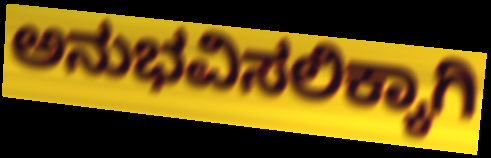
ಅನುಭವಿಸಲಿಕ್ಕಾಗಿ